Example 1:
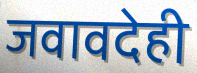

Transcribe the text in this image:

जवावदेही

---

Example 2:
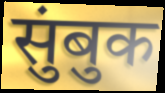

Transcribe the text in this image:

सुंबुक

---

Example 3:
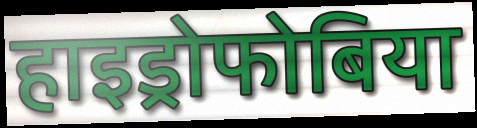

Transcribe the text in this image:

हाइड्रोफोबिया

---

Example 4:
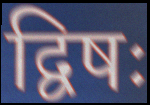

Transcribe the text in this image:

द्विषः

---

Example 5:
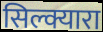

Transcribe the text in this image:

सिल्क्यारा